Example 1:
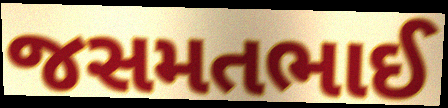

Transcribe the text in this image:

જસમતભાઈ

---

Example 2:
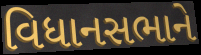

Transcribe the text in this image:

વિધાનસભાને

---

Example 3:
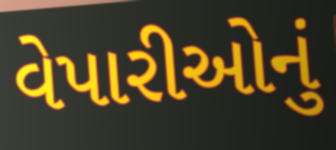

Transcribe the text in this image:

વેપારીઓનું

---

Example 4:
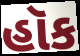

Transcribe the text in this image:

હૉક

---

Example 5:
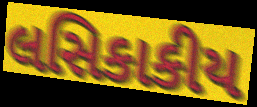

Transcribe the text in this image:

લસિકાકીય